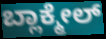
ಬ್ಲಾಕ್ಮೇಲ್